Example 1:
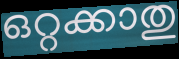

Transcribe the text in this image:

ഒറ്റക്കാതു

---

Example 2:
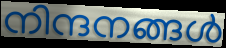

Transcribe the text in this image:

നിന്ദനങ്ങൾ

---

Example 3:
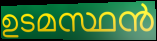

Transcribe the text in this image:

ഉടമസ്ഥൻ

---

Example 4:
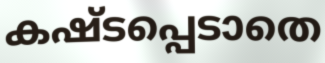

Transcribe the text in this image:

കഷ്ടപ്പെടാതെ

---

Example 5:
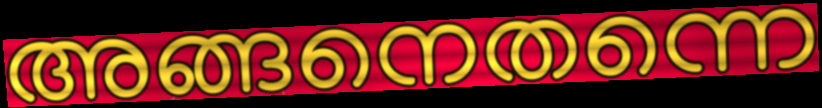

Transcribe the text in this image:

അങ്ങനെതന്നെ